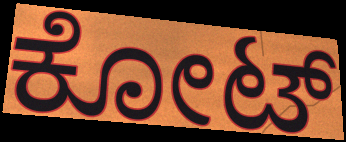
ಕೋಟ್